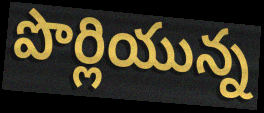
పొర్లియున్న